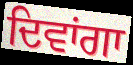
ਦਿਵਾਂਗਾ